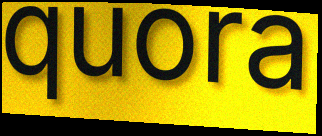
quora